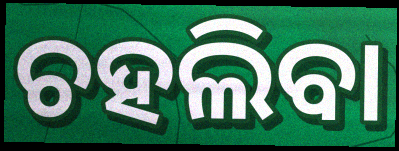
ଚହଲିବା